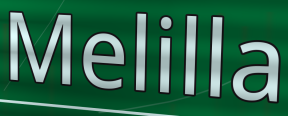
Melilla